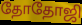
தோதோஜி